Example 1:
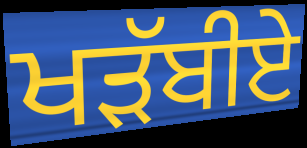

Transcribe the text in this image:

ਖੜੱਬੀਏ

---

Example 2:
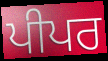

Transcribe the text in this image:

ਪੀਪਰ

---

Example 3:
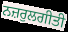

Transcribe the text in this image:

ਨਜ਼ਰੁਲਗੀਤੀ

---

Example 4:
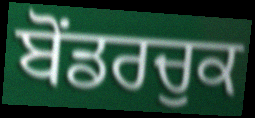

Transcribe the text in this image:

ਬੋਂਡਰਚੁਕ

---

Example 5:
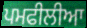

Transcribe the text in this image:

ਪਮਫੀਲੀਆ